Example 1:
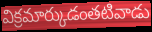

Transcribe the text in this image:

విక్రమార్కుడంతటివాడు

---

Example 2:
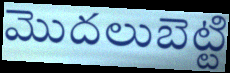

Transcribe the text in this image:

మొదలుబెట్టి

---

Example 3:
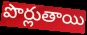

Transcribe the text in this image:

పొర్లుతాయి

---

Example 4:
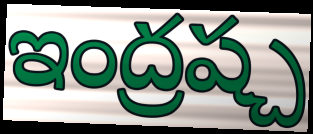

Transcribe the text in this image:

ఇంద్రష్చ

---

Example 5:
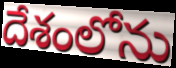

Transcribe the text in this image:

దేశంలోను